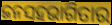
ଜନସହଭାଗିତାର